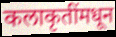
कलाकृतींमधून